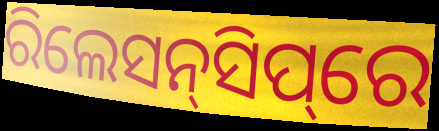
ରିଲେସନ୍‌ସିପ୍‌ରେ